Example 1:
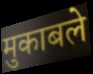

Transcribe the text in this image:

मुकाबले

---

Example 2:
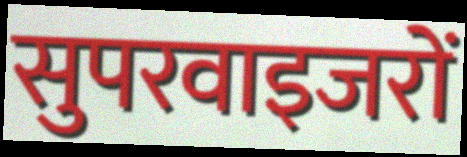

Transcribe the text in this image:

सुपरवाइजरों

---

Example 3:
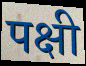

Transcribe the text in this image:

पक्षी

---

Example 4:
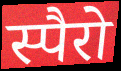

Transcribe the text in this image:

स्पैरो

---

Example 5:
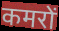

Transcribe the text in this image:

कमरों